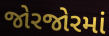
જોરજોરમાં